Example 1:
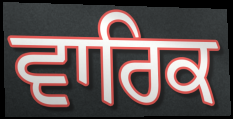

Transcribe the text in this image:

ਵਾਰਿਕ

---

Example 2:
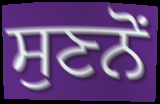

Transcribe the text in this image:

ਸੁਣਨੋਂ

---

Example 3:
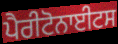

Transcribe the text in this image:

ਪੈਰੀਟੋਨਾਈਟਸ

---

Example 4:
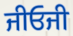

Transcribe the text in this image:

ਜੀਓਜੀ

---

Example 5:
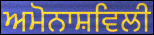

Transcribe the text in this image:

ਅਮੋਨਾਸ਼ਵਿਲੀ